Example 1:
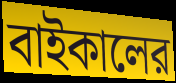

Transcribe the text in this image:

বাইকালের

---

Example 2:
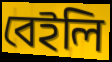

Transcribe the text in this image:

বেইলি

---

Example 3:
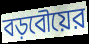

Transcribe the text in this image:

বড়বৌয়ের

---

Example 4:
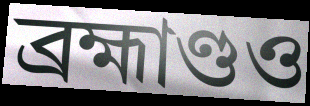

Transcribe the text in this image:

ব্রহ্মাণ্ডও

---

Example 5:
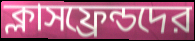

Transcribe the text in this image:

ক্লাসফ্রেন্ডদের